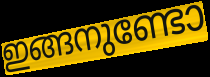
ഇങ്ങനുണ്ടോ